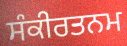
ਸੰਕੀਰਤਨਮ